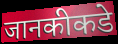
जानकीकडे